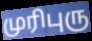
முரிபுரு